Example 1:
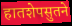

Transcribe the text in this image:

हातशेपसुतने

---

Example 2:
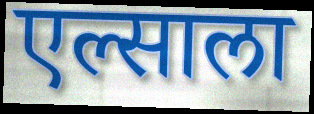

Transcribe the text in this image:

एल्साला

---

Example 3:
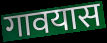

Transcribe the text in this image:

गावयास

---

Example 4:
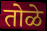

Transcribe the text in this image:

तोळे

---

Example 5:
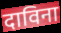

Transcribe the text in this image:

दाविना